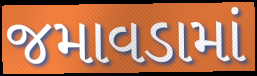
જમાવડામાં